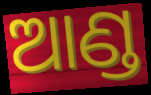
ଆଣ୍ଡ